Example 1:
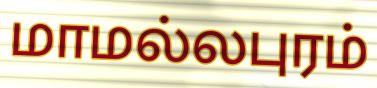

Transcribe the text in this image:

மாமல்லபுரம்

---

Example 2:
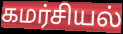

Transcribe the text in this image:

கமர்சியல்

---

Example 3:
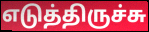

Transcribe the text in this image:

எடுத்திருச்சு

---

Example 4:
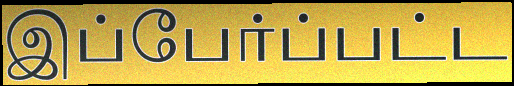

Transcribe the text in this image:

இப்பேர்ப்பட்ட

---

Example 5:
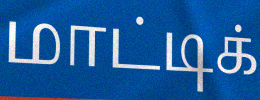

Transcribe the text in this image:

மாட்டிக்